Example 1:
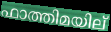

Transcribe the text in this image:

ഫാത്തിമയില്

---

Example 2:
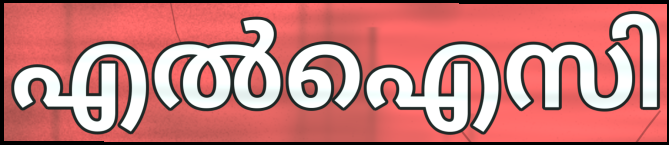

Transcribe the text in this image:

എൽഐസി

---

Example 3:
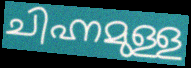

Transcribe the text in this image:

ചിഹ്നമുള്ള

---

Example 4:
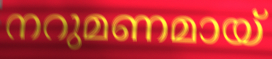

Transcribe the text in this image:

നറുമണമായ്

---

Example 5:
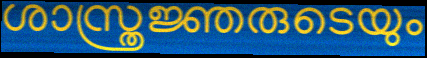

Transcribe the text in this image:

ശാസ്ത്രജ്ഞരുടെയും